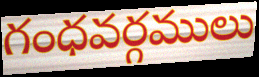
గంధవర్గములు